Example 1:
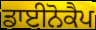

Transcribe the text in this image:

ਡਾਈਨੋਕੈਪ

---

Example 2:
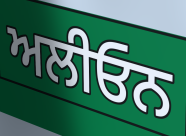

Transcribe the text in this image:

ਅਲੀਓਨ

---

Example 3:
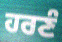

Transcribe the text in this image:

ਹਰਣੰ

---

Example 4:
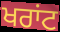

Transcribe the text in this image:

ਖਰਾਂਟ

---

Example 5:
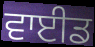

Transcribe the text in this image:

ਵਾਈਡ